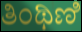
ತಿಂಥಿಣಿ